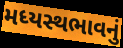
મધ્યસ્થભાવનું